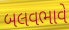
બલવભાવે